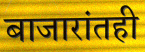
बाजारांतही